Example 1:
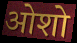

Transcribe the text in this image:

ओशो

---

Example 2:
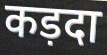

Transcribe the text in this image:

कड़दा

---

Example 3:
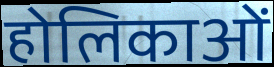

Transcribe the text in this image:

होलिकाओं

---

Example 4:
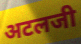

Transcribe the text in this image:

अटलजी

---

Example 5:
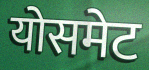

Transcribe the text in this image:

योसमेट